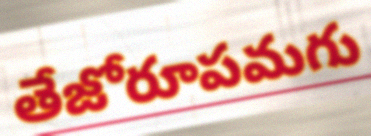
తేజోరూపమగు